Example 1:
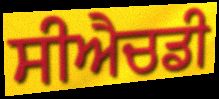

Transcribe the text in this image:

ਸੀਐਚਡੀ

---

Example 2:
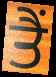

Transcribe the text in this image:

ਤੈਂ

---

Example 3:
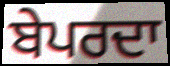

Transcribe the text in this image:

ਬੇਪਰਦਾ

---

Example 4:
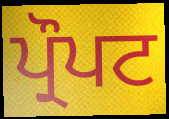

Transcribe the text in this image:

ਪ੍ਰੌਪਟ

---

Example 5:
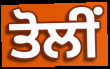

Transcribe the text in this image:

ਤੋਲੀਂ